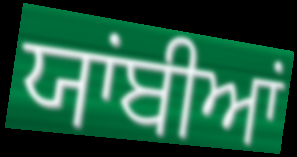
ਯਾਂਬੀਆਂ